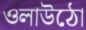
ওলাউঠো